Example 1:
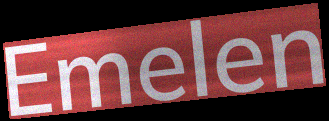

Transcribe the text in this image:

Emelen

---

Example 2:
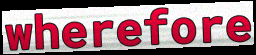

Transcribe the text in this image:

wherefore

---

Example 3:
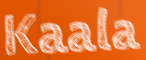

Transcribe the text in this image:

Kaala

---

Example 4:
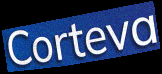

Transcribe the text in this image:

Corteva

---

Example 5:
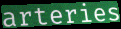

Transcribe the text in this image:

arteries